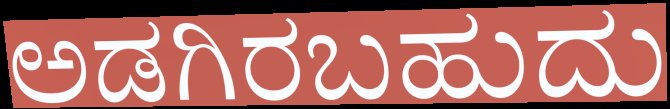
ಅಡಗಿರಬಹುದು